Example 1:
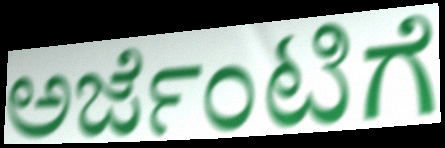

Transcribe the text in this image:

ಅರ್ಜೆಂಟಿಗೆ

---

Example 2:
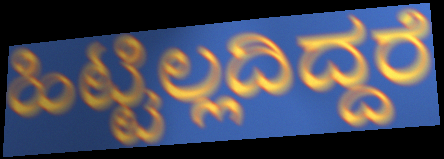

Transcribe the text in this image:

ಹಿಟ್ಟಿಲ್ಲದಿದ್ದರೆ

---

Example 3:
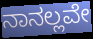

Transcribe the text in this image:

ನಾನಲ್ಲವೇ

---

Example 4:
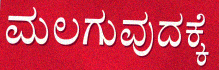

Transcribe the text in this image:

ಮಲಗುವುದಕ್ಕೆ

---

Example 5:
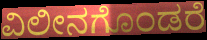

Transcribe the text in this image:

ವಿಲೀನಗೊಂಡರೆ